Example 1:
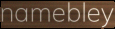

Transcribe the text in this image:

namebley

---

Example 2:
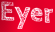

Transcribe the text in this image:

Eyer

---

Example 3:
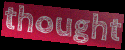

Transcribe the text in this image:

thought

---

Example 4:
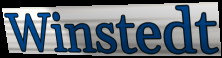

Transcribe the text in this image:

Winstedt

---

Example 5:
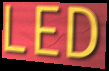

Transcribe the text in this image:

LED